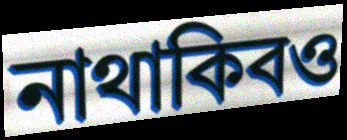
নাথাকিবও